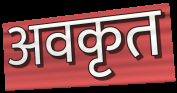
अवकृत